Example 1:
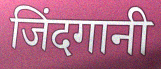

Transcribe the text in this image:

जिंदगानी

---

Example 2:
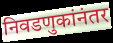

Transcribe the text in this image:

निवडणुकांनंतर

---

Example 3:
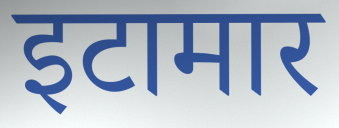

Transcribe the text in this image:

इटामार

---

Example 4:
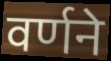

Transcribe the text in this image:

वर्णने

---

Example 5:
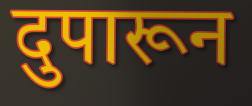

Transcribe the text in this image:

दुपारून